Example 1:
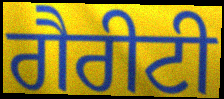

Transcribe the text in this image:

ਗੈਰੀਟੀ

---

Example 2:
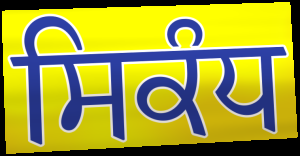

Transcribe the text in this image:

ਸਿਕੰਧ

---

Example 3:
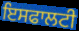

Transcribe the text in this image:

ਇਸਫਾਲਟੀ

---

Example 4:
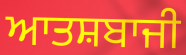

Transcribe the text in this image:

ਆਤਸ਼ਬਾਜੀ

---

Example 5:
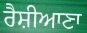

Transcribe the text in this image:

ਰੈਸ਼ੀਆਣਾ